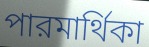
পারমার্থিকা